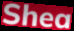
Shea